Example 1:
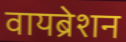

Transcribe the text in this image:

वायब्रेशन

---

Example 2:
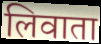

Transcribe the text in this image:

लिवाता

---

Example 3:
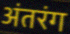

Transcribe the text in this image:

अंतरंग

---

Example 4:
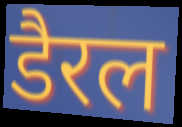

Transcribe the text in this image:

डैरल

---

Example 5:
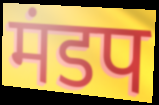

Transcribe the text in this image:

मंडप